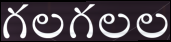
గలగలల